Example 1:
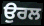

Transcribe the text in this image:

ਉਰਲ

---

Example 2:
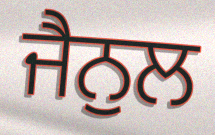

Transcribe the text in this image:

ਜੈਨੁਲ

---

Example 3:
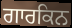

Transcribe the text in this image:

ਗਾਰਕਿਨ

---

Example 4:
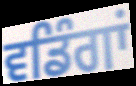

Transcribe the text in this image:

ਵਡਿੰਗਾਂ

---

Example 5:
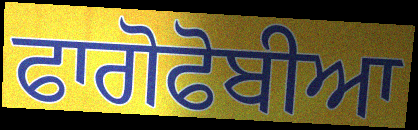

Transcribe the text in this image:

ਫਾਗੋਫੋਬੀਆ